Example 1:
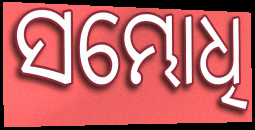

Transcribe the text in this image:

ସମ୍ଭୋଧି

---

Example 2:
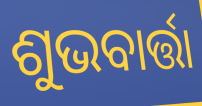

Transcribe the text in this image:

ଶୁଭବାର୍ତ୍ତା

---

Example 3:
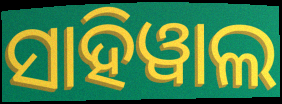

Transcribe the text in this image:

ସାହିୱାଲ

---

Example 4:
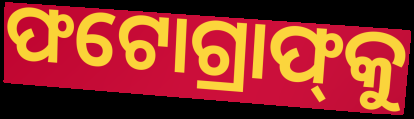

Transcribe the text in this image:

ଫଟୋଗ୍ରାଫ୍‌କୁ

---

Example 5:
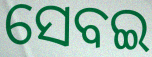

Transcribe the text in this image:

ସେବଇ